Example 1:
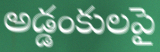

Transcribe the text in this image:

అడ్డంకులపై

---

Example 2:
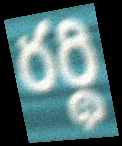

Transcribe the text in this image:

రర్థి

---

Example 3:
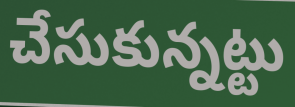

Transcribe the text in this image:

చేసుకున్నట్టు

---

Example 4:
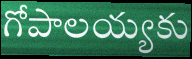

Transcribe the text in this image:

గోపాలయ్యకు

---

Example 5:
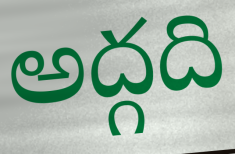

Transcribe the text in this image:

అద్గది